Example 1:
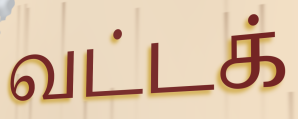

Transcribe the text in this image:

வட்டக்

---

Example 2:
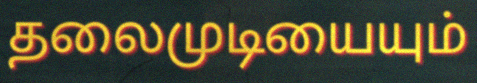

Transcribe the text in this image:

தலைமுடியையும்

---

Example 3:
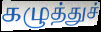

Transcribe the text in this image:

கழுத்துச்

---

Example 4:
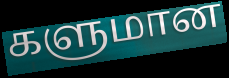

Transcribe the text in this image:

களுமான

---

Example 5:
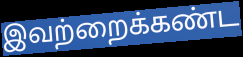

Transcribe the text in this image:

இவற்றைக்கண்ட